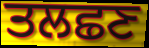
ਤਲਛਣ